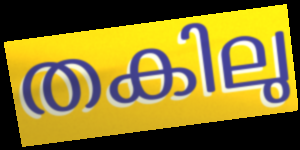
തകിലു